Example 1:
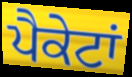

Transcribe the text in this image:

ਪੈਕੇਟਾਂ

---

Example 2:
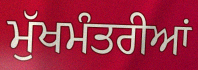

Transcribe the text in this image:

ਮੁੱਖਮੰਤਰੀਆਂ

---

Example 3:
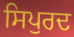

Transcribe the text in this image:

ਸਿਪੁਰਦ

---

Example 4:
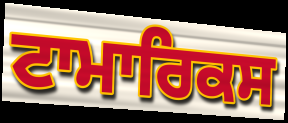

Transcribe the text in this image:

ਟਾਮਾਰਿਕਸ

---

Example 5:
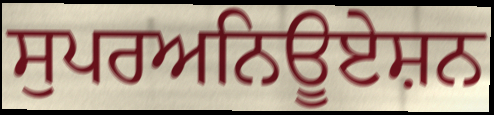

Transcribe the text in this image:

ਸੁਪਰਅਨਿਊਏਸ਼ਨ